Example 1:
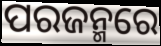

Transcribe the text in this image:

ପରଜନ୍ମରେ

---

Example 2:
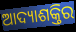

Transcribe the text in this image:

ଆଦ୍ୟାଶକ୍ତିର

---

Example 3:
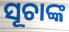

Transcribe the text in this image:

ସୂଚାଙ୍କ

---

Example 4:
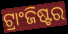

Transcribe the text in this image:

ଟ୍ରାଂଜିଷ୍ଟର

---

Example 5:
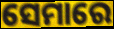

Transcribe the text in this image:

ସେମାରେ